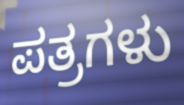
ಪತ್ರಗಳು